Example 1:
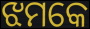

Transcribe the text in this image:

ଝମକେ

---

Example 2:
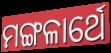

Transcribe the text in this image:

ମଙ୍ଗଳାର୍ଥେ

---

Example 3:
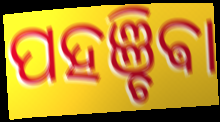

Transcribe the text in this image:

ପହଞ୍ଚିଵା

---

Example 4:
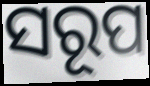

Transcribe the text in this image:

ସରୂପ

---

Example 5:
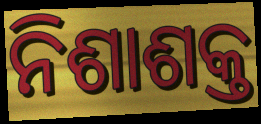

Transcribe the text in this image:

ନିଶାଶକ୍ତ